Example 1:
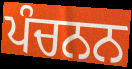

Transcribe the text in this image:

ਪੰਚਨਨ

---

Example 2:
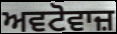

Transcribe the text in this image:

ਅਵਟੋਵਾਜ਼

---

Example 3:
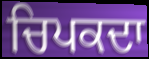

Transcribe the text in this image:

ਚਿਪਕਦਾ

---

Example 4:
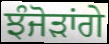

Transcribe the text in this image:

ਝੰਜੋੜਾਂਗੇ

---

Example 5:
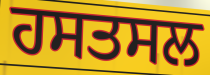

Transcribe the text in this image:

ਹਸਤਸਲ